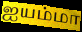
ஐயம்மா